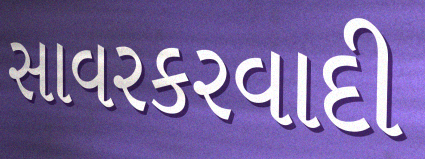
સાવરકરવાદી